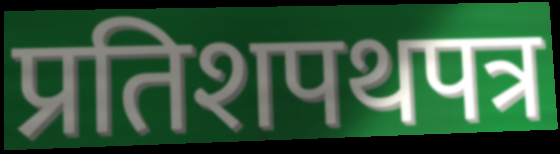
प्रतिशपथपत्र